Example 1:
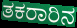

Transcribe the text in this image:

ತಕರಾರಿನ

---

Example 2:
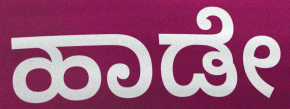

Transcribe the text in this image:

ಹಾಡೇ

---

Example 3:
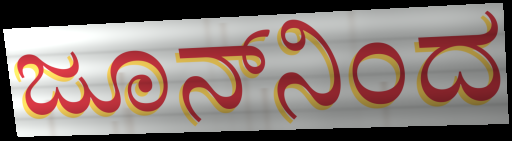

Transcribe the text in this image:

ಜೂನ್‌ನಿಂದ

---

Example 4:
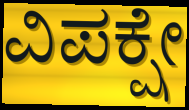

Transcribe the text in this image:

ವಿಪಕ್ಷೇ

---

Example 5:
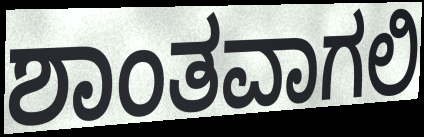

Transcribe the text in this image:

ಶಾಂತವಾಗಲಿ